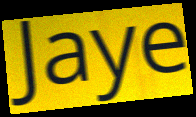
Jaye